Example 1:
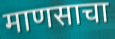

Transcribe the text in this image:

माणसाचा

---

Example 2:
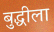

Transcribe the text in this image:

बुद्धीला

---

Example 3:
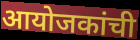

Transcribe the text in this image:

आयोजकांची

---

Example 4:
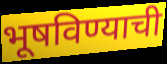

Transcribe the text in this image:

भूषविण्याची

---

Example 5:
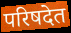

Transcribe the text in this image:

परिषदेत